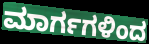
ಮಾರ್ಗಗಳಿಂದ